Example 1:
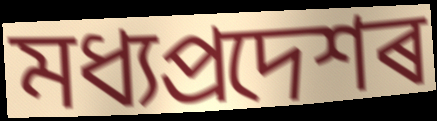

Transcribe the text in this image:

মধ্যপ্ৰদেশৰ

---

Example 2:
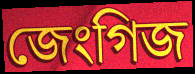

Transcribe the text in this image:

জেংগিজ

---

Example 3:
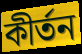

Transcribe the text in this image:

কীৰ্তন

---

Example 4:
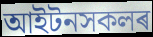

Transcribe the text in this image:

আইটনসকলৰ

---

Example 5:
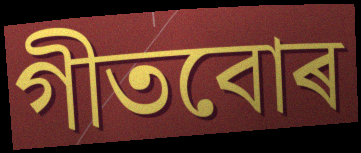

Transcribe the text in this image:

গীতবোৰ